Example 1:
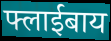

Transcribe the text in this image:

फ्लाईबाय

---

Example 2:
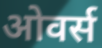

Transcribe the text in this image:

ओवर्स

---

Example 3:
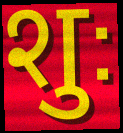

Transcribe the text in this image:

शुः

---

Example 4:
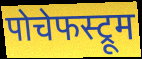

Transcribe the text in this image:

पोचेफस्ट्रूम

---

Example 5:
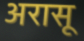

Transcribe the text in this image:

अरासू